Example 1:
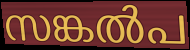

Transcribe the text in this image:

സങ്കൽപ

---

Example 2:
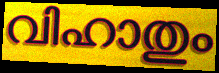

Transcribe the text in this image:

വിഹാതും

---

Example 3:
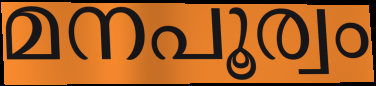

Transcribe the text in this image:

മനപൂര്വം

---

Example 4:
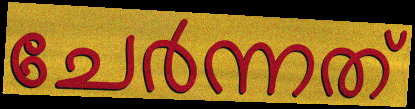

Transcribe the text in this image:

ചേർന്നത്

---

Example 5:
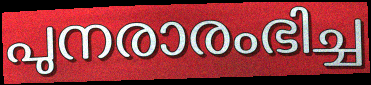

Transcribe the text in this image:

പുനരാരംഭിച്ച